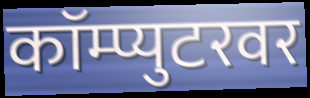
कॉम्प्युटरवर